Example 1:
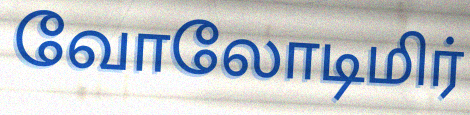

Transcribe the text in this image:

வோலோடிமிர்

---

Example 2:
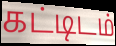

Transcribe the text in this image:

கட்டிடம்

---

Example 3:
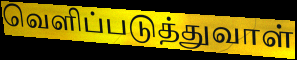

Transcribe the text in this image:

வெளிப்படுத்துவாள்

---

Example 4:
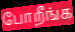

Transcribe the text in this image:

போறீங்க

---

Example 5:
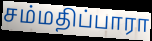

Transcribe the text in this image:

சம்மதிப்பாரா